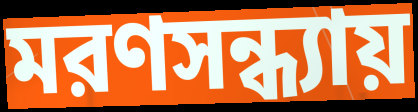
মরণসন্ধ্যায়